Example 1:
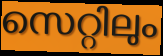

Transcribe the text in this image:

സെറ്റിലും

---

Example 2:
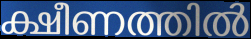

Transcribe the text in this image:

ക്ഷീണത്തിൽ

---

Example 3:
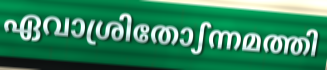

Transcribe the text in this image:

ഏവാശ്രിതോഽന്നമത്തി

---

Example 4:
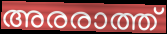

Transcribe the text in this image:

അരരാത്ത്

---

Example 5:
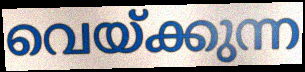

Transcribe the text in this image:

വെയ്ക്കുന്ന